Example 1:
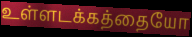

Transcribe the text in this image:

உள்ளடக்கத்தையோ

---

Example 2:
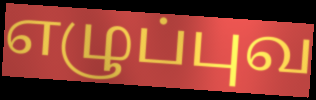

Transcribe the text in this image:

எழுப்புவ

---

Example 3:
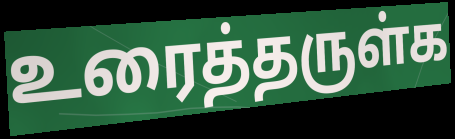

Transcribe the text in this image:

உரைத்தருள்க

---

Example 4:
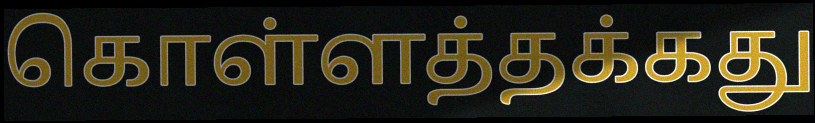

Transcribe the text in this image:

கொள்ளத்தக்கது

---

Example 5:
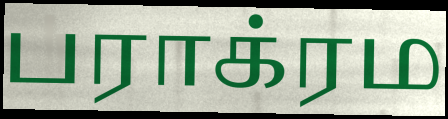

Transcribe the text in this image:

பராக்ரம